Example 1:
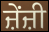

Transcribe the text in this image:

ਜ਼ੇਂਜ਼ੀ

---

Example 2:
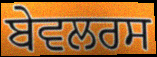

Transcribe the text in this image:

ਬੇਵਲਰਸ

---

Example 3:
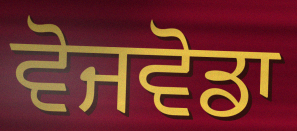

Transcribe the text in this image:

ਵੋਜਵੋਡਾ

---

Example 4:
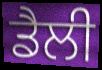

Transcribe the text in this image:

ਡੈਲੀ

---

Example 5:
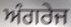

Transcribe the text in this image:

ਅੰਗਰੇਜ